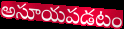
అసూయపడటం